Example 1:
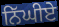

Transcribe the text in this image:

ਨਿੱਘੀਏ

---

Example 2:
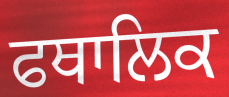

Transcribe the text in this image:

ਫਥਾਲਿਕ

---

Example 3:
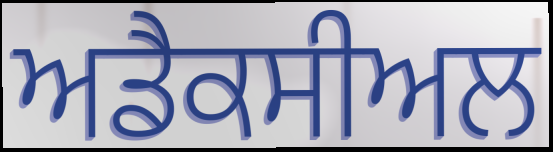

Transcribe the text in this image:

ਅਡੈਕਸੀਅਲ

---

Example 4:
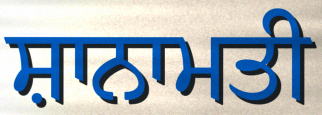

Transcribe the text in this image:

ਸ਼ਾਨਾਮਤੀ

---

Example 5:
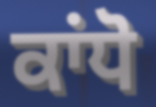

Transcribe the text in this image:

ਕਾਂਧੋ